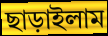
ছাড়াইলাম